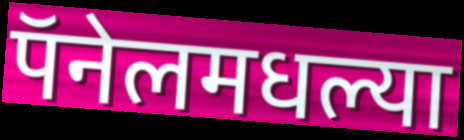
पॅनेलमधल्या